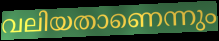
വലിയതാണെന്നും